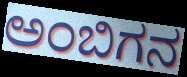
ಅಂಬಿಗನ